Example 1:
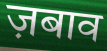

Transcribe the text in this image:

ज़बाव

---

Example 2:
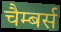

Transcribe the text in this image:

चैम्‍बर्स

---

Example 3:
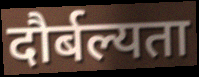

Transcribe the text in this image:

दौर्बल्यता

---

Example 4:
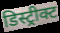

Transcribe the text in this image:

डिस्ट्रीक्ट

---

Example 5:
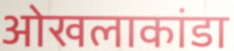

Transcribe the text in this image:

ओखलाकांडा